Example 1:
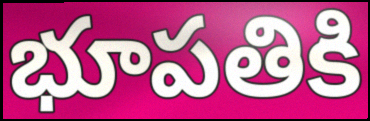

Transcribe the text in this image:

భూపతికి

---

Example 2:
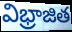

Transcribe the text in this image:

విభ్రాజిత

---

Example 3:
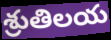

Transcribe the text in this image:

శ్రుతిలయ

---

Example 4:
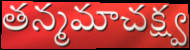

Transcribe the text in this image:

తన్మమాచక్ష్వ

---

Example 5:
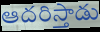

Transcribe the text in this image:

ఆదరిస్తాడు